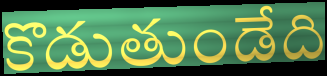
కొడుతుండేది